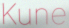
Kune